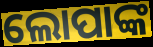
ଲୋପାଙ୍କ